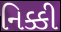
નિક્કી